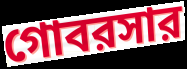
গোবরসার